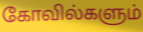
கோவில்களும்